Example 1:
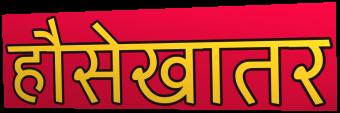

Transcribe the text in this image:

हौसेखातर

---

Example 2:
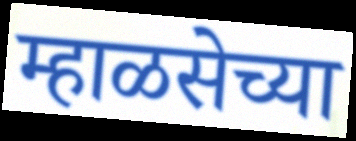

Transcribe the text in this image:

म्हाळसेच्या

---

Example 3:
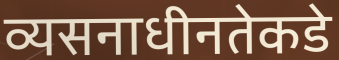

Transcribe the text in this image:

व्यसनाधीनतेकडे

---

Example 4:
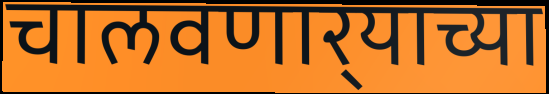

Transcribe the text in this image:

चालवणार्‍याच्या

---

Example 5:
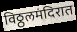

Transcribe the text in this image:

विठ्ठलमंदिरात